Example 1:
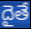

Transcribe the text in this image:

దైతే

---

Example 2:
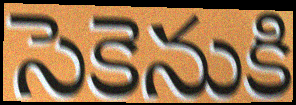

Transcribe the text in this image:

సెకెనుకి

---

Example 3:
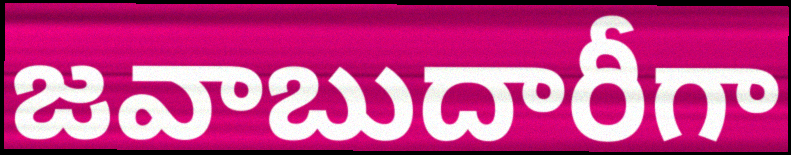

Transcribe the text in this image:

జవాబుదారీగా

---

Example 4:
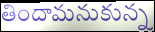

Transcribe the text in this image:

తిందామనుకున్న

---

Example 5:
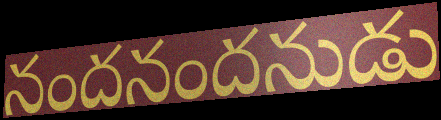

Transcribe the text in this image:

నందనందనుడు